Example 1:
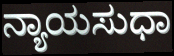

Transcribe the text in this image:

ನ್ಯಾಯಸುಧಾ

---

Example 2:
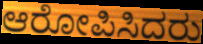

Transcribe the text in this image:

ಆರೋಪಿಸಿದರು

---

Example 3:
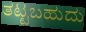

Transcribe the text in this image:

ತಟ್ಟಬಹುದು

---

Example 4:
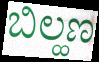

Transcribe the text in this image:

ಬಿಲ್ಹಣ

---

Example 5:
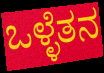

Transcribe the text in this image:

ಒಳ್ಳೆತನ